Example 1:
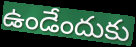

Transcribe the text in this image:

ఉండేందుకు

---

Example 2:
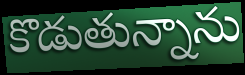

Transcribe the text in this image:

కొడుతున్నాను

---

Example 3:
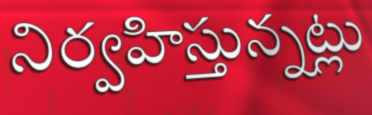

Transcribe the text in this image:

నిర్వహిస్తున్నట్లు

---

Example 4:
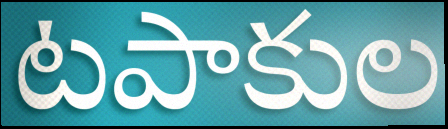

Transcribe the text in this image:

టపాకుల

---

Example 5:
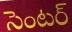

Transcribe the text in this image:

సెంటర్